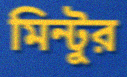
মিন্টুর